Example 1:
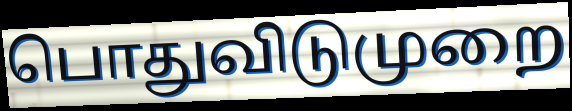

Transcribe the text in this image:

பொதுவிடுமுறை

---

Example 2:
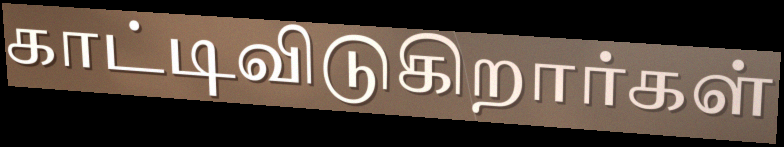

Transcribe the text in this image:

காட்டிவிடுகிறார்கள்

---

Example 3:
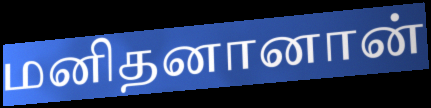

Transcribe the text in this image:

மனிதனானான்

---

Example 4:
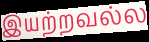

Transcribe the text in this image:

இயற்றவல்ல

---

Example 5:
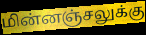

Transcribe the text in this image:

மின்னஞ்சலுக்கு